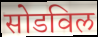
सोडविल